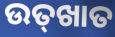
ଉତ୍‌ଖାତ